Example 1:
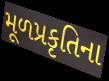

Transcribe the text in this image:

મૂળપ્રકૃતિના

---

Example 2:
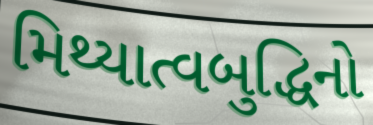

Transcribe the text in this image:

મિથ્યાત્વબુદ્ધિનો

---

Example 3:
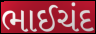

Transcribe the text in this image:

ભાઈચંદ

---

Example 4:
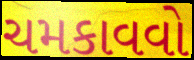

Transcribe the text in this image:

ચમકાવવો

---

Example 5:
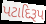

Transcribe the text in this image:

પટાદિરૂપ